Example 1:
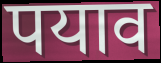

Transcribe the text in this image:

पयाव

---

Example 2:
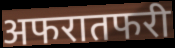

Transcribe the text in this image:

अफरातफरी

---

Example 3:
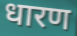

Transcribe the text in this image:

धारण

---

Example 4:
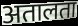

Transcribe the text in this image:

अतालता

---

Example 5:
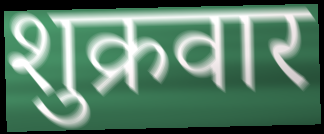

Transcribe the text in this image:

शुक्रवार